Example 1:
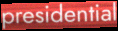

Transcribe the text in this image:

presidential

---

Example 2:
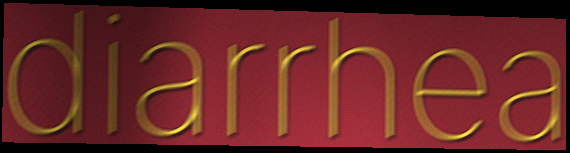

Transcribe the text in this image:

diarrhea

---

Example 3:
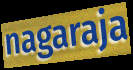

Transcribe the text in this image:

nagaraja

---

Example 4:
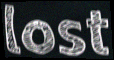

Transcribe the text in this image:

lost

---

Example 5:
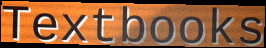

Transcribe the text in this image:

Textbooks